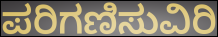
ಪರಿಗಣಿಸುವಿರಿ